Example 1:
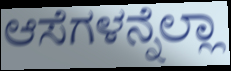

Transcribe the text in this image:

ಆಸೆಗಳನ್ನೆಲ್ಲಾ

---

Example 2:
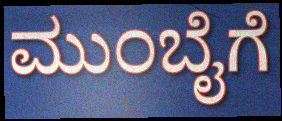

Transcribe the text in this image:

ಮುಂಬೈಗೆ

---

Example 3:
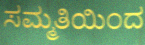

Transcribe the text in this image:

ಸಮ್ಮತಿಯಿಂದ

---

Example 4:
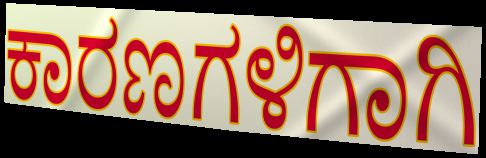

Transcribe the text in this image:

ಕಾರಣಗಳಿಗಾಗಿ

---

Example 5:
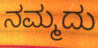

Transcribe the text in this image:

ನಮ್ಮದು